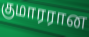
குமாரரான